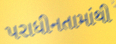
પરાધીનતામાંથી